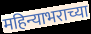
महिन्याभराच्या